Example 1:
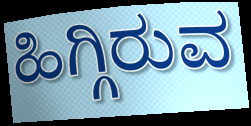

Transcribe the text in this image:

ಹಿಗ್ಗಿರುವ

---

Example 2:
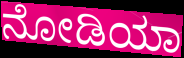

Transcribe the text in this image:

ನೋಡಿಯಾ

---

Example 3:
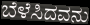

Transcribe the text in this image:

ಬೆಳೆಸಿದವನು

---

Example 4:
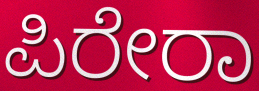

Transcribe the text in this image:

ಪಿರೇರಾ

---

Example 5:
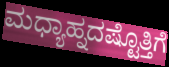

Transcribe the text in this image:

ಮಧ್ಯಾಹ್ನದಷ್ಟೊತ್ತಿಗೆ